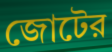
জোটের